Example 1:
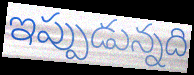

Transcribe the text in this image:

ఇప్పుడున్నది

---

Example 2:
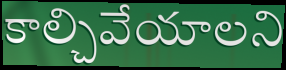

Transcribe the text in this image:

కాల్చివేయాలని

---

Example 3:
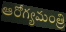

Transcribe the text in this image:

ఆరోగ్యమంత్రి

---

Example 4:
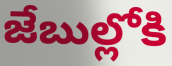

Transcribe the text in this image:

జేబుల్లోకి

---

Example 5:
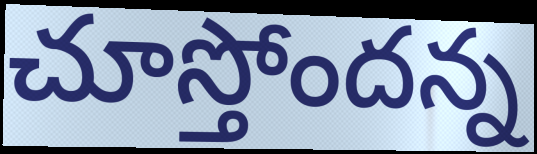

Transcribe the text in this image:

చూస్తోందన్న